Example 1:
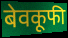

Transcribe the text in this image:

बेवकूफी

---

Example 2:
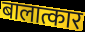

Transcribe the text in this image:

बालात्कार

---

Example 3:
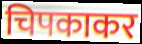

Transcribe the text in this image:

चिपकाकर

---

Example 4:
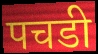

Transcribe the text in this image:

पचडी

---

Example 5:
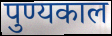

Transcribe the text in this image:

पुण्यकाल